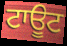
ਟਾਊਟ